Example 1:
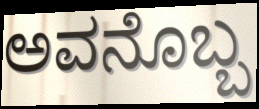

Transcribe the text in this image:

ಅವನೊಬ್ಬ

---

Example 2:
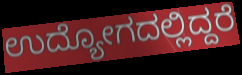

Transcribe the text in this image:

ಉದ್ಯೋಗದಲ್ಲಿದ್ದರೆ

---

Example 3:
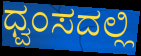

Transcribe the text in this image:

ಧ್ವಂಸದಲ್ಲಿ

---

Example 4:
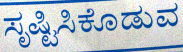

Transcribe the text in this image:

ಸೃಷ್ಟಿಸಿಕೊಡುವ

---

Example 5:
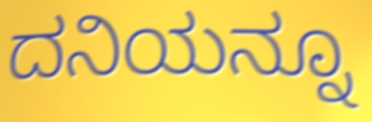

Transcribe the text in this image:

ದನಿಯನ್ನೂ